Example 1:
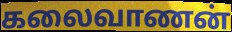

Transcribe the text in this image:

கலைவாணன்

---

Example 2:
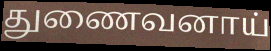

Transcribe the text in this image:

துணைவனாய்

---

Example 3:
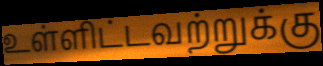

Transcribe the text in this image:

உள்ளிட்டவற்றுக்கு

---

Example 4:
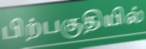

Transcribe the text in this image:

பிற்பகுதியில்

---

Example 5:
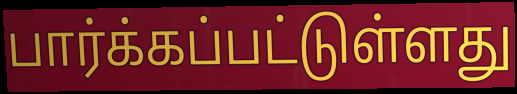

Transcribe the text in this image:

பார்க்கப்பட்டுள்ளது